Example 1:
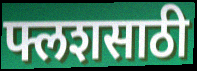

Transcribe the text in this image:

फ्लशसाठी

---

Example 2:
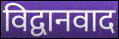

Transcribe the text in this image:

विद्वानवाद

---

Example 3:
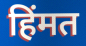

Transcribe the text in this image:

हिंमत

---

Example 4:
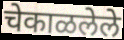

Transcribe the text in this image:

चेकाळलेले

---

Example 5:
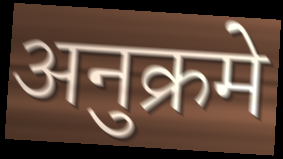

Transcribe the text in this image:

अनुक्रमे